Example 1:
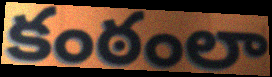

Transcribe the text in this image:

కంఠంలా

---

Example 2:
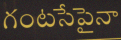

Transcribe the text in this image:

గంటసేపైనా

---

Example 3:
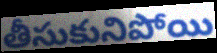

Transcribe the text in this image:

తీసుకునిపోయి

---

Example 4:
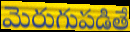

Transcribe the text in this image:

మెరుగుపడితే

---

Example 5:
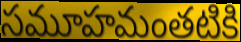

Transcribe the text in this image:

సమూహమంతటికి